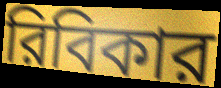
রিবিকার